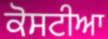
ਕੋਸਟੀਆ